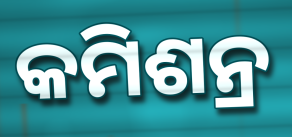
କମିଶନ୍ର